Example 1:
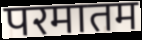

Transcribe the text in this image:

परमातम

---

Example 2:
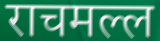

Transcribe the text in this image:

राचमल्ल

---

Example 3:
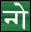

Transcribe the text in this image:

न्गे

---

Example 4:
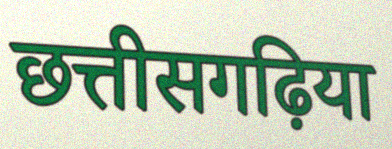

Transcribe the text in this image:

छत्तीसगढ़िया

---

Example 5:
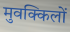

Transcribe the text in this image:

मुवक्किलों